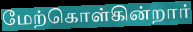
மேற்கொள்கின்றார்